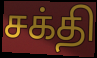
சக்தி